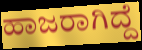
ಹಾಜರಾಗಿದ್ದೆ